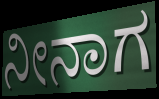
ನೀನಾಗ